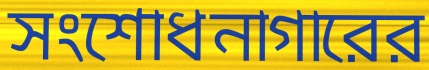
সংশোধনাগারের